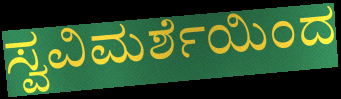
ಸ್ವವಿಮರ್ಶೆಯಿಂದ